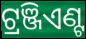
ଟ୍ରଞ୍ଜିଏଣ୍ଟ